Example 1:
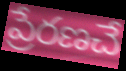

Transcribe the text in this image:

ప్రేరణచే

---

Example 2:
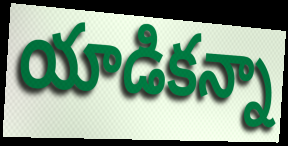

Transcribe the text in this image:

యాడికన్నా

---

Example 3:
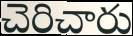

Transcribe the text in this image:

చెరిచారు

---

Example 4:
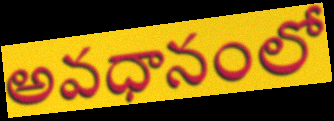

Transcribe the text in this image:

అవధానంలో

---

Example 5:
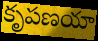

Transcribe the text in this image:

కృపణయా